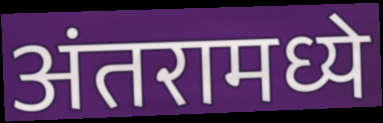
अंतरामध्ये